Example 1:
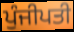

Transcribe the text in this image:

ਪੁੰਜੀਪਤੀ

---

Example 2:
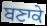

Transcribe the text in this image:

ਬਣਾਕੇ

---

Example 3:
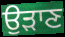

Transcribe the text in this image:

ਉਡ਼ਾਣ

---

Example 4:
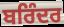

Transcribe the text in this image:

ਬਰਿੰਦਰ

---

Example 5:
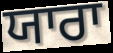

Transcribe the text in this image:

ਯਾਰਾ